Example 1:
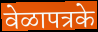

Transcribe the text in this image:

वेळापत्रके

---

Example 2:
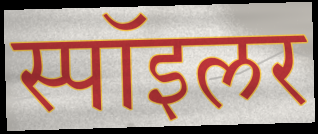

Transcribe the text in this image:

स्पॉइलर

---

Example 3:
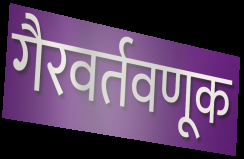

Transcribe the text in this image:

गैरवर्तवणूक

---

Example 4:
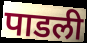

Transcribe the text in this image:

पाडली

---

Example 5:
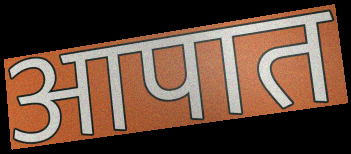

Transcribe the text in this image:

आपात